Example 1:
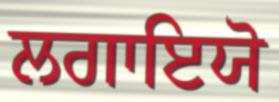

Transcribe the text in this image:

ਲਗਾਇਯੋ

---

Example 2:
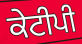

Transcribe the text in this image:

ਕੇਟੀਪੀ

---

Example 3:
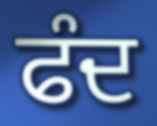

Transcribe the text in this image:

ਫੰਦ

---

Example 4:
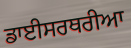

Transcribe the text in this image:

ਡਾਈਸਰਥਰੀਆ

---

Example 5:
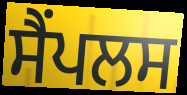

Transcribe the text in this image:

ਸੈਂਪਲਸ